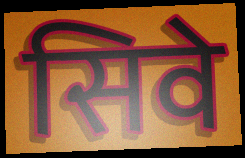
सिवे